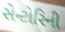
સેન્ટોરિની